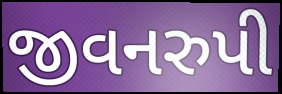
જીવનરુપી